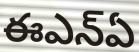
ఈఎన్ఏ